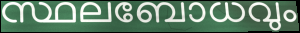
സ്ഥലബോധവും